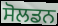
ਸੋਲਡਨ